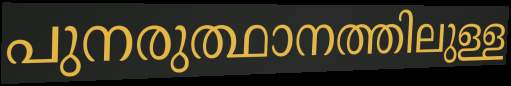
പുനരുത്ഥാനത്തിലുള്ള